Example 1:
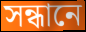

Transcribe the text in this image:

সন্ধানে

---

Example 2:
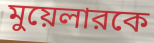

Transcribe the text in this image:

মুয়েলারকে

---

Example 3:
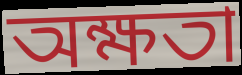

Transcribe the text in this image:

অক্ষতা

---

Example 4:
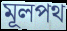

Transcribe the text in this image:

মূলপথ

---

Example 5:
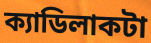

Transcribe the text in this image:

ক্যাডিলাকটা